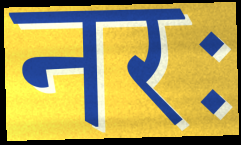
नरः